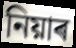
নিয়াৰ